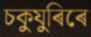
চকুযুৰিৰে